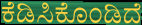
ಕೆಡಿಸಿಕೊಂಡಿದೆ